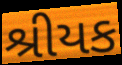
શ્રીયક